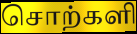
சொற்களி